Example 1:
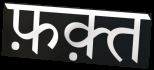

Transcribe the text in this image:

फ़क़्त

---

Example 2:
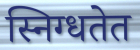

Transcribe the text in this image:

स्निग्धतेत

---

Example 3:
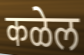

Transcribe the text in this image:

कळेल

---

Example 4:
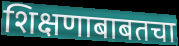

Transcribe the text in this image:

शिक्षणाबाबतचा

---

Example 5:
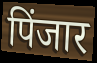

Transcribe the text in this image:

पिंजार